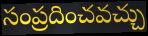
సంప్రదించవచ్చు